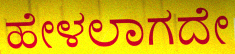
ಹೇಳಲಾಗದೇ